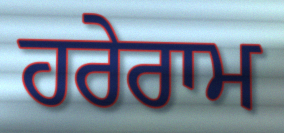
ਹਰੇਰਾਮ